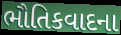
ભૌતિકવાદના